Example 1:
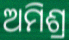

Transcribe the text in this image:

ଅମିଶ୍ର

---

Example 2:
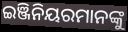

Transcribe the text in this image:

ଇଞ୍ଜିନିୟରମାନଙ୍କୁ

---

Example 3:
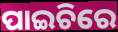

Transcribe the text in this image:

ପାଇଚିରେ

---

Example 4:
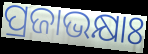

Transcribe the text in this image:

ପ୍ରଜାଭକ୍ଷାଃ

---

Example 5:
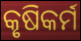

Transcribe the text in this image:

କୃଷିକର୍ମ